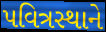
પવિત્રસ્થાને